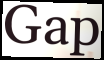
Gap